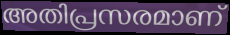
അതിപ്രസരമാണ്